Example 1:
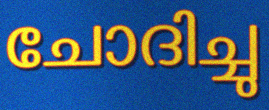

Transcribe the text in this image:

ചോദിച്ചു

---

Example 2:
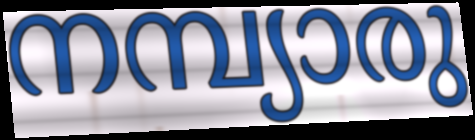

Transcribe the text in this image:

നമ്പ്യാരു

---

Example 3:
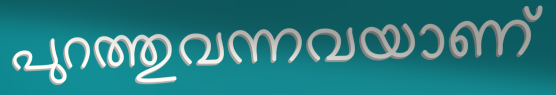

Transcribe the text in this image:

പുറത്തുവന്നവയാണ്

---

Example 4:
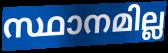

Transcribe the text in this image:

സ്ഥാനമില്ല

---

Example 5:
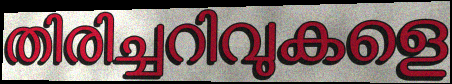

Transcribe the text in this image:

തിരിച്ചറിവുകളെ